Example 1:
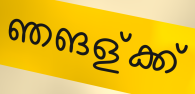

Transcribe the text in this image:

ഞങള്ക്ക്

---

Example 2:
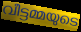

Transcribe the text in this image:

വീട്ടമ്മയുടെ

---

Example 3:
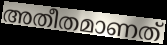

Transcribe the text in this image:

അതീതമാണത്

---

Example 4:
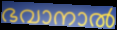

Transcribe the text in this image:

ഭവാനാൽ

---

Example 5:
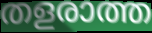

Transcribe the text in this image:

തളരാത്ത